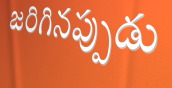
జరిగినప్పుడు